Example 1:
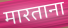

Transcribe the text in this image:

मारताना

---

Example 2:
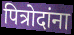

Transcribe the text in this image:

पित्रोदांना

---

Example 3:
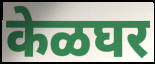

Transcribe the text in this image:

केळघर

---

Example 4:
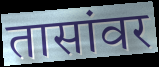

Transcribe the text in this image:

तासांवर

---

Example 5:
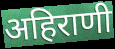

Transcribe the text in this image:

अहिराणी